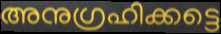
അനുഗ്രഹിക്കട്ടെ